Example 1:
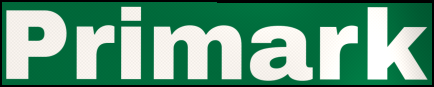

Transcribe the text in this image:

Primark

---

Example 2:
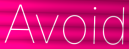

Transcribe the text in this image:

Avoid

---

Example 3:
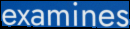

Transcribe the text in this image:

examines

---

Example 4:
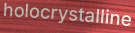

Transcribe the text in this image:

holocrystalline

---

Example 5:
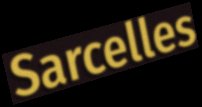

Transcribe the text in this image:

Sarcelles